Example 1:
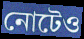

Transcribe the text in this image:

নোটেও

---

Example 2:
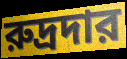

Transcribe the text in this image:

রুদ্রদার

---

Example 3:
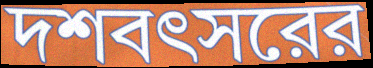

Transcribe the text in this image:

দশবৎসরের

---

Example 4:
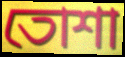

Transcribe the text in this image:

তোশা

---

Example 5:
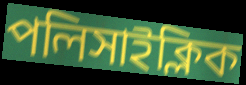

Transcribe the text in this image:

পলিসাইক্লিক